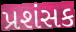
પ્રશંસક